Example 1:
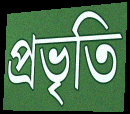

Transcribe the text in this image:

প্ৰভৃতি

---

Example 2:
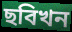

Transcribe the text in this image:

ছবিখন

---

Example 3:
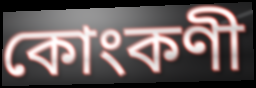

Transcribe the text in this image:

কোংকণী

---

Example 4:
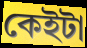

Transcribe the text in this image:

কেইটা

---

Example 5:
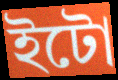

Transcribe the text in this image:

ইটো